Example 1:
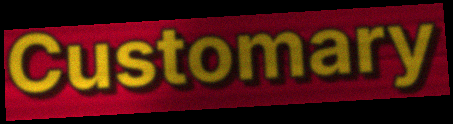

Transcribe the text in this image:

Customary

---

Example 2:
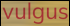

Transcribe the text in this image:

vulgus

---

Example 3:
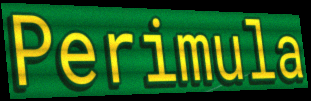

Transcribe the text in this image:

Perimula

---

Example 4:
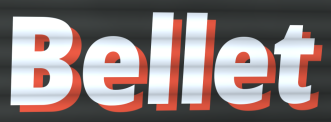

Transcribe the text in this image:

Bellet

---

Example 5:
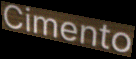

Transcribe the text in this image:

Cimento